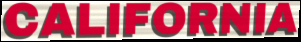
CALIFORNIA